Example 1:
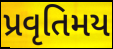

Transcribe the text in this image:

પ્રવૃતિમય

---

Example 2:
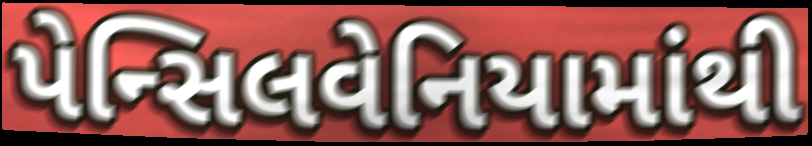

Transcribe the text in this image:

પેન્સિલવેનિયામાંથી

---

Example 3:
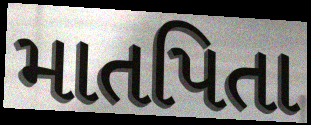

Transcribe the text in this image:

માતપિતા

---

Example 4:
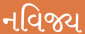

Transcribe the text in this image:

નવિજ્ય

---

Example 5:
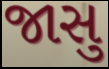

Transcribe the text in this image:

જાસુ